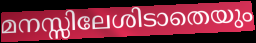
മനസ്സിലേശിടാതെയും